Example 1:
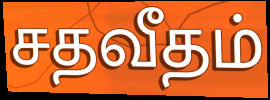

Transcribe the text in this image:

சதவீதம்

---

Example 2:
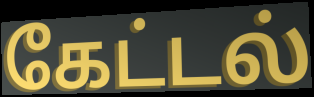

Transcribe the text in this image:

கேட்டல்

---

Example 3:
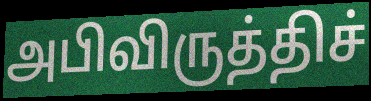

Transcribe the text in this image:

அபிவிருத்திச்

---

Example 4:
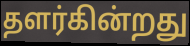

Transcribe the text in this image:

தளர்கின்றது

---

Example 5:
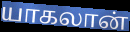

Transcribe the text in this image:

யாகலான்